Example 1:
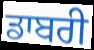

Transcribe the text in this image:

ਡਾਬਰੀ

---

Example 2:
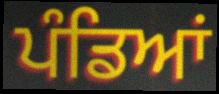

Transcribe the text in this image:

ਪੰਡਿਆਂ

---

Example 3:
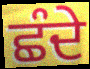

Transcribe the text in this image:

ਛੰਦੇ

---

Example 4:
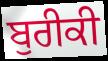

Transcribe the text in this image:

ਬੁਰੀਕੀ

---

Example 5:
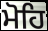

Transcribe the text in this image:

ਮੋਹਿ